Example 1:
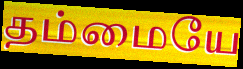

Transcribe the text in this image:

தம்மையே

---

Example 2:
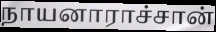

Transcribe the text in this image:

நாயனாராச்சான்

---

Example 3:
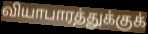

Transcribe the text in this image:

வியாபாரத்துக்குக்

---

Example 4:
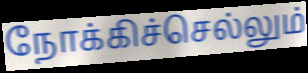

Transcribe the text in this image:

நோக்கிச்செல்லும்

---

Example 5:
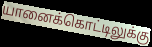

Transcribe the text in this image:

யானைக்கொட்டிலுக்கு